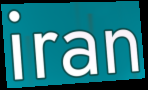
iran